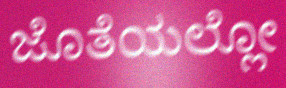
ಜೊತೆಯಲ್ಲೋ